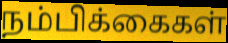
நம்பிக்கைகள்